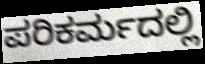
ಪರಿಕರ್ಮದಲ್ಲಿ